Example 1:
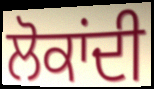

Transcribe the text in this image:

ਲੋਕਾਂਦੀ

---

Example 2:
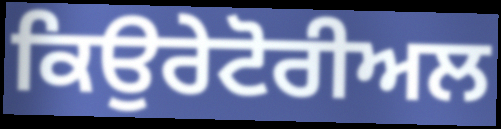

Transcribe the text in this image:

ਕਿਉਰੇਟੋਰੀਅਲ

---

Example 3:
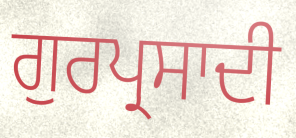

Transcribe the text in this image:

ਗੁਰਪ੍ਰਸਾਦੀ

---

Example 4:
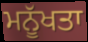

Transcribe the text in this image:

ਮਨੂੱਖਤਾ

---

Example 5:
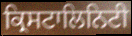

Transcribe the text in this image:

ਕ੍ਰਿਸਟਾਲਿਨਿਟੀ